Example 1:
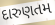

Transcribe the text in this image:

દારુણતમ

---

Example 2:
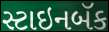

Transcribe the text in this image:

સ્ટાઇનબૅક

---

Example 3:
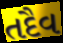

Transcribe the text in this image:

તદૈવ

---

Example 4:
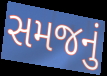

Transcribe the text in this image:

સમજનું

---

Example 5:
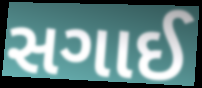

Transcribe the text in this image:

સગાઈ